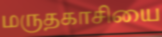
மருதகாசியை